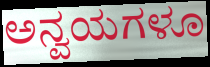
ಅನ್ವಯಗಳೂ